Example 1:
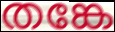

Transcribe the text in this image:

തങ്കേ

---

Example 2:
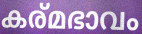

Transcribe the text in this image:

കര്മഭാവം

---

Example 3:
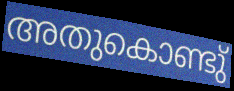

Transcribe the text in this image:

അതുകൊണ്ടു്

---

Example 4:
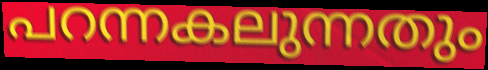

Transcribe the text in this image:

പറന്നകലുന്നതും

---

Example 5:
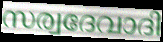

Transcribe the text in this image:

സര്വദേവാദി